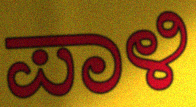
ಪಾಳಿ